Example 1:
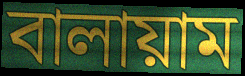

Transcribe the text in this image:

বালায়াম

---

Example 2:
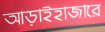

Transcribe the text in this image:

আড়াইহাজারে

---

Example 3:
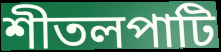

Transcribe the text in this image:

শীতলপাটি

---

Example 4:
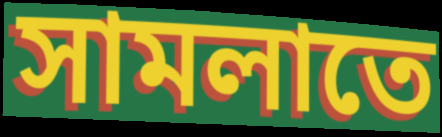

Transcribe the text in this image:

সামলাতে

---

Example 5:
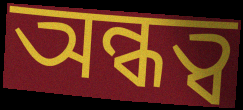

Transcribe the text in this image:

অন্ধত্ব